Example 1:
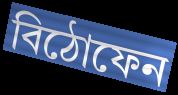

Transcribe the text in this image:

বিঠোফেন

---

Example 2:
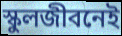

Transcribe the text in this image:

স্কুলজীবনেই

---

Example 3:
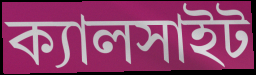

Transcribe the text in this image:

ক্যালসাইট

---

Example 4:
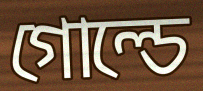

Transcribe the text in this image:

গোল্ডে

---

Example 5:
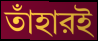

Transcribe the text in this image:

তাঁহারই